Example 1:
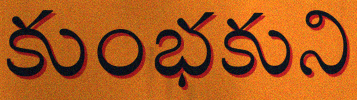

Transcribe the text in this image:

కుంభకుని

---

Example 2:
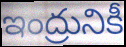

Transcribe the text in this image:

ఇంద్రునికీ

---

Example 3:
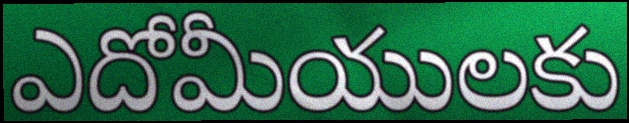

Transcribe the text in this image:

ఎదోమీయులకు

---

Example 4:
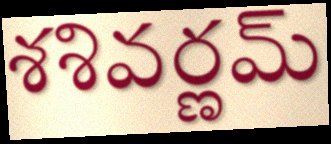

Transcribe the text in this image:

శశివర్ణమ్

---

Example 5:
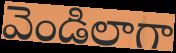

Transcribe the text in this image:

వెండిలాగా